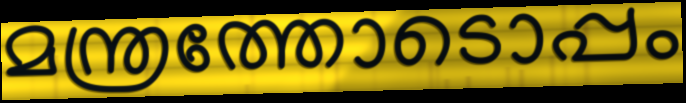
മന്ത്രത്തോടൊപ്പം